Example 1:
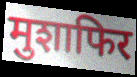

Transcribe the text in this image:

मुशाफिर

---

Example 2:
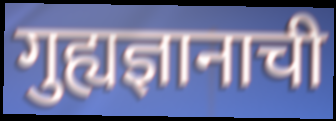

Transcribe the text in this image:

गुह्यज्ञानाची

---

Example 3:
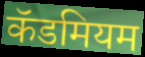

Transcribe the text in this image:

कॅडमियम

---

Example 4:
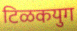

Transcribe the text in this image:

टिळकयुग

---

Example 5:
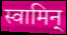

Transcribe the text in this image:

स्वामिन्